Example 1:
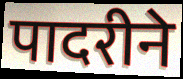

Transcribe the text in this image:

पादरीने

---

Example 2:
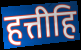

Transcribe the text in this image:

हत्तीहि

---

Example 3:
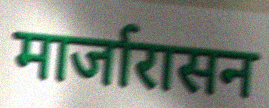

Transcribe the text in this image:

मार्जारासन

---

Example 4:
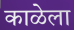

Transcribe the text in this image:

काळेला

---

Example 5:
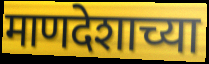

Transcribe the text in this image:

माणदेशाच्या